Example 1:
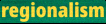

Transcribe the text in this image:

regionalism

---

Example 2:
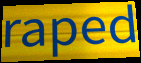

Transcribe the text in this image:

raped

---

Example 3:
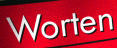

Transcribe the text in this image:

Worten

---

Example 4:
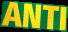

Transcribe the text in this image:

ANTI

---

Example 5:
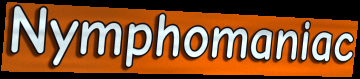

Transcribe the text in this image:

Nymphomaniac